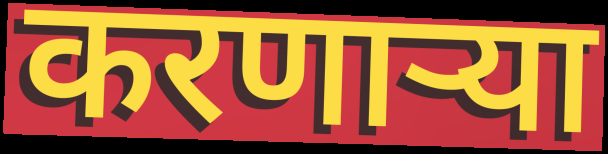
करणार्‍या